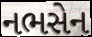
નભસેન